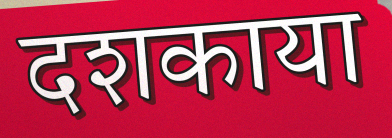
दशकाया